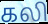
கலி